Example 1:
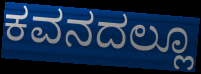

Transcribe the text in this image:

ಕವನದಲ್ಲೂ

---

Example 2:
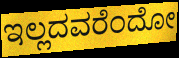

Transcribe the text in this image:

ಇಲ್ಲದವರೆಂದೋ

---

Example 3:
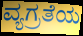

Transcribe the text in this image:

ವ್ಯಗ್ರತೆಯ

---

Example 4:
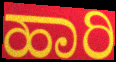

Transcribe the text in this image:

ಹಾರಿ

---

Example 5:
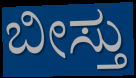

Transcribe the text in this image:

ಬೀಸ್ತು